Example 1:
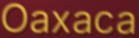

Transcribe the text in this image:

Oaxaca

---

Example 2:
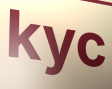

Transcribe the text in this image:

kyc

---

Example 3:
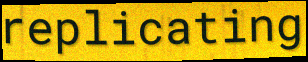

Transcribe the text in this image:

replicating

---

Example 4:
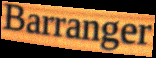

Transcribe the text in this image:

Barranger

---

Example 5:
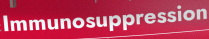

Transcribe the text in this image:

Immunosuppression